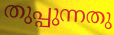
തുപ്പുന്നതു